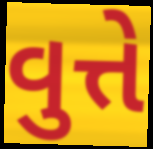
વુત્તે